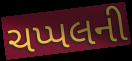
ચપ્પલની